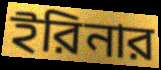
ইরিনার